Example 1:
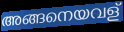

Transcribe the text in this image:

അങ്ങനെയവള്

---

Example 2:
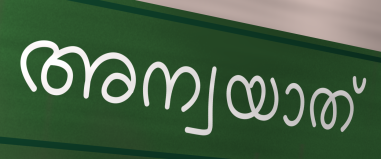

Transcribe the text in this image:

അന്വയാത്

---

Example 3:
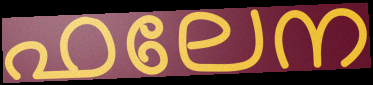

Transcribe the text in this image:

ഫലേന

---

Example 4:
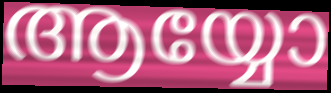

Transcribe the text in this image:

ആയ്യോ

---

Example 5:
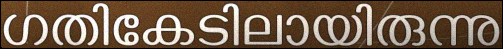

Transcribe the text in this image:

ഗതികേടിലായിരുന്നു